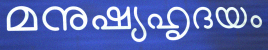
മനുഷ്യഹൃദയം